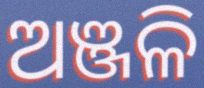
ଅଞ୍ଜଳି